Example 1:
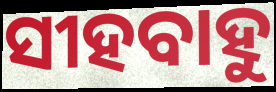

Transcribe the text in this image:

ସୀହବାହୁ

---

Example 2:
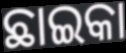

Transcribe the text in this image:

ଛାଇକା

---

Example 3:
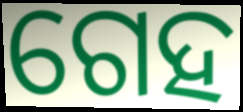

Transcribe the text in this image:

ଗେହ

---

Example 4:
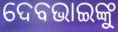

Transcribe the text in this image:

ଦେବଭାଇଙ୍କୁ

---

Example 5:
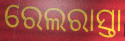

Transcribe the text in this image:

ରେଲରାସ୍ତା